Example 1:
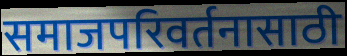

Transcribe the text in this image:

समाजपरिवर्तनासाठी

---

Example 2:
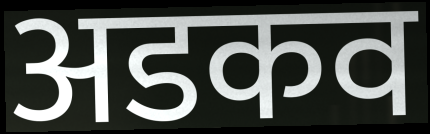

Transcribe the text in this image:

अडकव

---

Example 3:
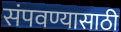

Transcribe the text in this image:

संपवण्यासाठी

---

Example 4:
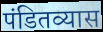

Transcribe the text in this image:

पंडितव्यास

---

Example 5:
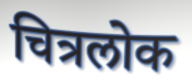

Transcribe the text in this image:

चित्रलोक